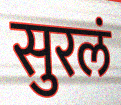
सुरलं